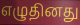
எழுதினது